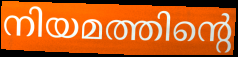
നിയമത്തിന്റെ